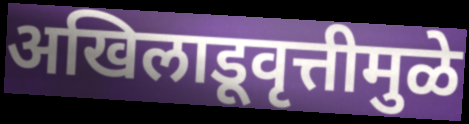
अखिलाडूवृत्तीमुळे